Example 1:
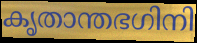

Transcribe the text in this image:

കൃതാന്തഭഗിനി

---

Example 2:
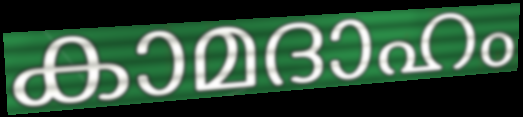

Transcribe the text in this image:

കാമദാഹം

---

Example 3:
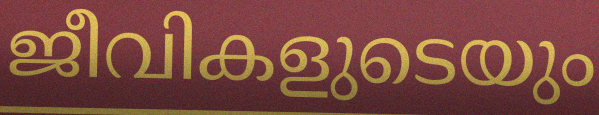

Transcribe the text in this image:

ജീവികളുടെയും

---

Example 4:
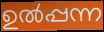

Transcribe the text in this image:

ഉൽപ്പന്ന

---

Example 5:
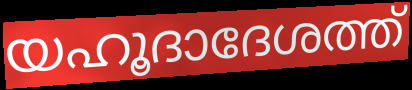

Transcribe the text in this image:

യഹൂദാദേശത്ത്